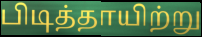
பிடித்தாயிற்று